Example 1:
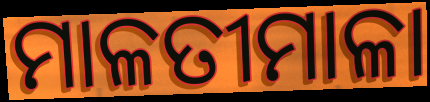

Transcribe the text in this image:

ମାଳତୀମାଳା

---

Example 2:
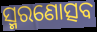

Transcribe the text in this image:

ସ୍ମରଣୋତ୍ସବ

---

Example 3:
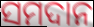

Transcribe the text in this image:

ସମଦାନ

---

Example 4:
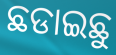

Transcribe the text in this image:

ଛଡାଇଛୁ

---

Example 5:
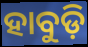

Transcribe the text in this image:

ହାବୁଡ଼ି